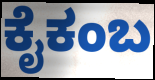
ಕೈಕಂಬ